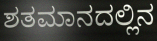
ಶತಮಾನದಲ್ಲಿನ